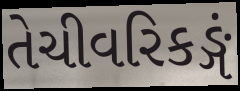
તેચીવરિકઙ્ગં